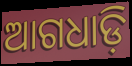
ଆଗଧାଡ଼ି